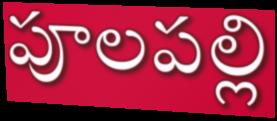
పూలపల్లి